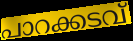
പാറക്കടവ്